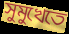
সুমুখেতে